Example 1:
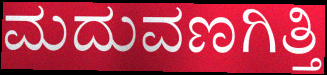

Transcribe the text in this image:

ಮದುವಣಗಿತ್ತಿ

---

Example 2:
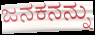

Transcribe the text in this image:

ಜನಕನನ್ನು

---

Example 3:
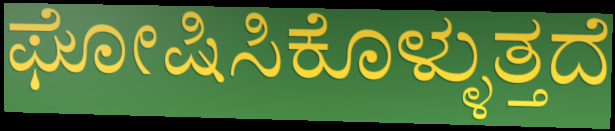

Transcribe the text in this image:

ಘೋಷಿಸಿಕೊಳ್ಳುತ್ತದೆ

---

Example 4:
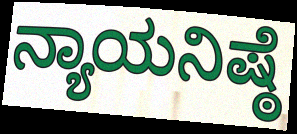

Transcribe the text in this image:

ನ್ಯಾಯನಿಷ್ಠೆ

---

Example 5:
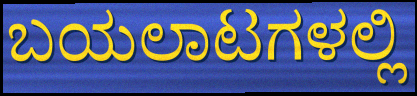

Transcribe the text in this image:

ಬಯಲಾಟಗಳಲ್ಲಿ